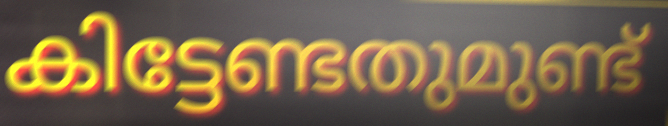
കിട്ടേണ്ടതുമുണ്ട്